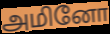
அமினோ